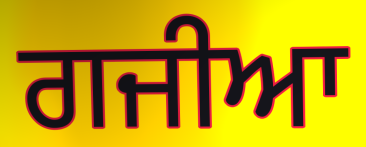
ਗਜੀਆ